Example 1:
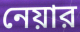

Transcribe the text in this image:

নেয়ার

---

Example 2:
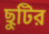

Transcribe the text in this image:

ছুটির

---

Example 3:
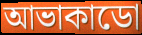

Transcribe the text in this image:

আভাকাডো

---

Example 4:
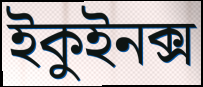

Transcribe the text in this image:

ইকুইনক্স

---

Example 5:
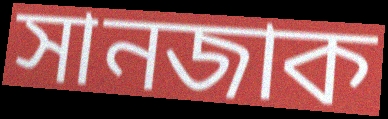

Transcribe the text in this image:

সানজাক